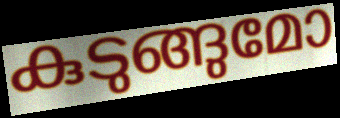
കുടുങ്ങുമോ